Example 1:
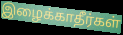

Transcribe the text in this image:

இழைக்காதீர்கள்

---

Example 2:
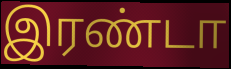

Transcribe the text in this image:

இரண்டா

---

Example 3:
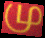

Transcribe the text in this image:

மு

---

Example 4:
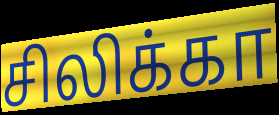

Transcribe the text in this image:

சிலிக்கா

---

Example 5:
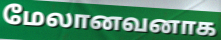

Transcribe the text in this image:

மேலானவனாக